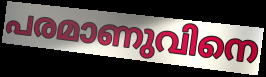
പരമാണുവിനെ